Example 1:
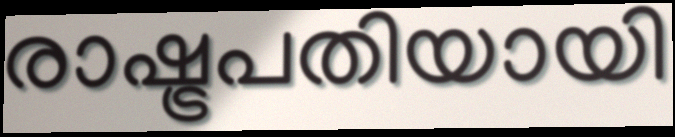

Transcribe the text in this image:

രാഷ്ട്രപതിയായി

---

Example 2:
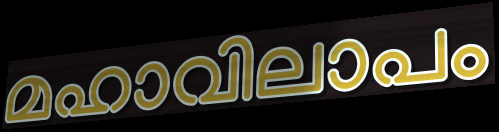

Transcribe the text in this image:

മഹാവിലാപം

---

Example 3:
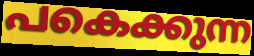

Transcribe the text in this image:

പകെക്കുന്ന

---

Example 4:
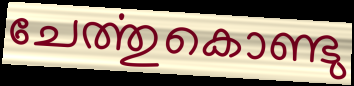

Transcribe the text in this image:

ചേൎത്തുകൊണ്ടു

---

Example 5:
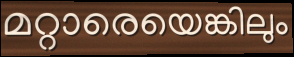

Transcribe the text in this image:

മറ്റാരെയെങ്കിലും